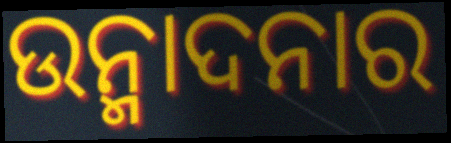
ଉନ୍ମାଦନାର